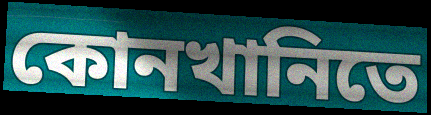
কোনখানিতে